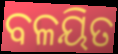
ବଳୟିତ